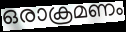
ഒരാക്രമണം